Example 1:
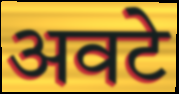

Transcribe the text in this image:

अवटे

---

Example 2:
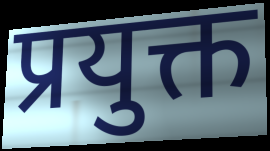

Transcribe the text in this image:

प्रयुक्त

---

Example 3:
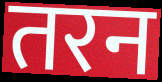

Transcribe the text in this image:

तरन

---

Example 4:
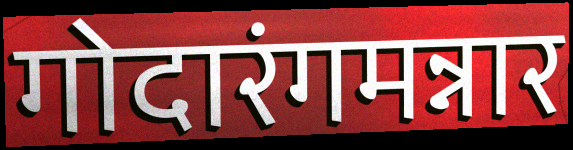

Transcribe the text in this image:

गोदारंगमन्नार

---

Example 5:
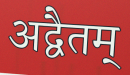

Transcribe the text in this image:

अद्वैतम्